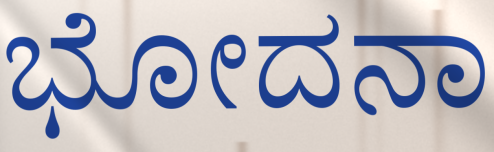
ಭೋದನಾ